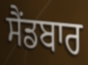
ਸੈਂਡਬਾਰ